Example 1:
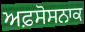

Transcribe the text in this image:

ਅਫ਼ਸੋਸਨਾਕ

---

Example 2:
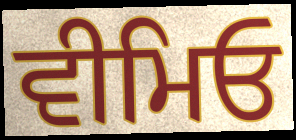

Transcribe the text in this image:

ਵੀਮਿਓ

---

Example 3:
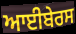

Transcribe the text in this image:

ਆਈਬੇਰਸ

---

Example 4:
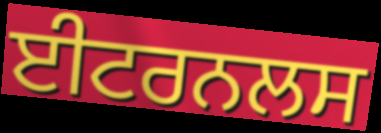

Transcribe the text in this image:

ਈਟਰਨਲਸ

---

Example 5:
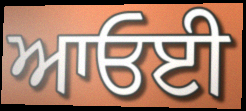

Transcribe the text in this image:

ਆਓਈ